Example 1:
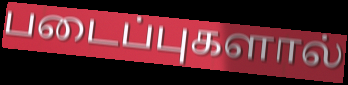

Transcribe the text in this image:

படைப்புகளால்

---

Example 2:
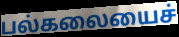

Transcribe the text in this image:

பல்கலையைச்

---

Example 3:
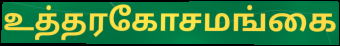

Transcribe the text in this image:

உத்தரகோசமங்கை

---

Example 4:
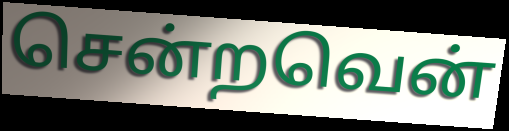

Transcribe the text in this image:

சென்றவென்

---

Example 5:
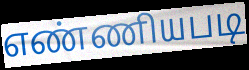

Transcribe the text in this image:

எண்ணியபடி